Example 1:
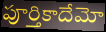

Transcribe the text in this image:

పూర్తికాదేమో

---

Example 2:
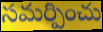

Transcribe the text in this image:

సమర్పించు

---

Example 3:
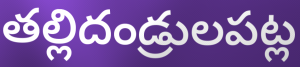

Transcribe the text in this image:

తల్లిదండ్రులపట్ల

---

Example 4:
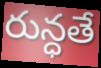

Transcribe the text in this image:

రున్ధతే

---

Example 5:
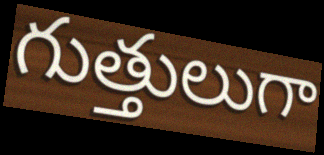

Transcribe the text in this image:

గుత్తులుగా